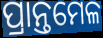
ପ୍ରାନ୍ତମେଳ